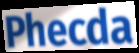
Phecda